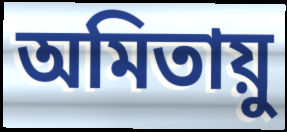
অমিতায়ু